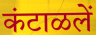
कंटाळलें